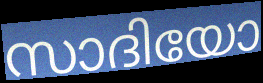
സാദിയോ